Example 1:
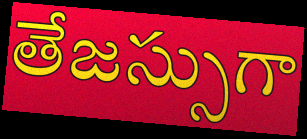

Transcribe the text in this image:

తేజస్సుగా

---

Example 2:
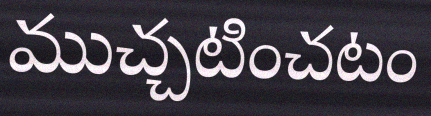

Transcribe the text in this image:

ముచ్చటించటం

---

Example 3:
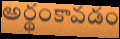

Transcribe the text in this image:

అర్థంకావడం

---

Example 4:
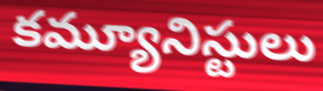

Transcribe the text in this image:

కమ్యూనిస్టులు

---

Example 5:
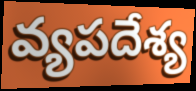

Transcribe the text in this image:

వ్యపదేశ్య